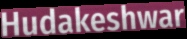
Hudakeshwar